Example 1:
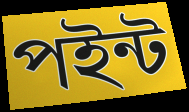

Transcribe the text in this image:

পইন্ট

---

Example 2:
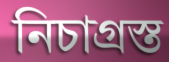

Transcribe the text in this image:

নিচাগ্ৰস্ত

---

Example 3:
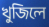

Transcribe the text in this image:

খুজিলে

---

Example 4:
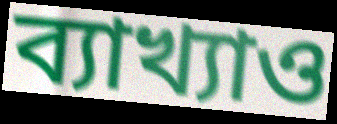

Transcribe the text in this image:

ব্যাখ্যাও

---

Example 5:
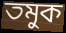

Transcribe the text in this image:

তমুক